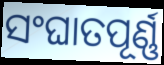
ସଂଘାତପୂର୍ଣ୍ଣ